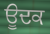
ਊਦਕ